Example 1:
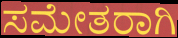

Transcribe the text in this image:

ಸಮೇತರಾಗಿ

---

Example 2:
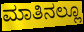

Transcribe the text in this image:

ಮಾತಿನಲ್ಲೂ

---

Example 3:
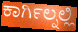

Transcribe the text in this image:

ಕಾರ್ಗಿಲ್ನಲ್ಲಿ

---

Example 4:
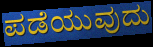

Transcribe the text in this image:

ಪಡೆಯುವುದು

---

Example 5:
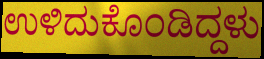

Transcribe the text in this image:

ಉಳಿದುಕೊಂಡಿದ್ದಳು